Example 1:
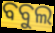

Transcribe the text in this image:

ବବୁଲ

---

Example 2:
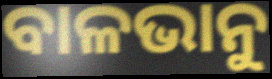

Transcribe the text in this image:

ବାଳଭାନୁ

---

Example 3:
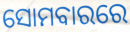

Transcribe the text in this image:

ସୋମବାରରେ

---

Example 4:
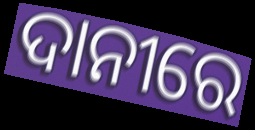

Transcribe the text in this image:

ଦାନୀରେ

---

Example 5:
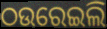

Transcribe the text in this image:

ଠଉରେଇଲି